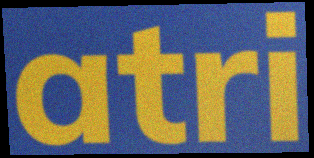
atri